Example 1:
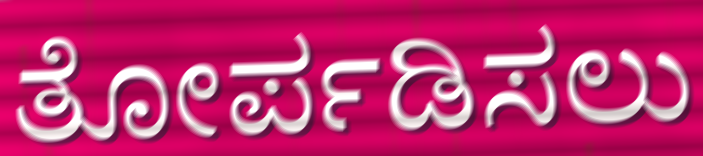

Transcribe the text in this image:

ತೋರ್ಪಡಿಸಲು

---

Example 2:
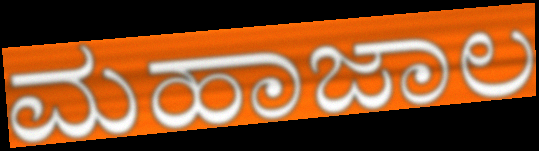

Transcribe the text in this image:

ಮಹಾಜಾಲ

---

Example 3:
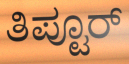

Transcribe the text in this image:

ತಿಪ್ಟೂರ್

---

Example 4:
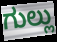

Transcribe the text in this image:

ಗುಲ್ಲು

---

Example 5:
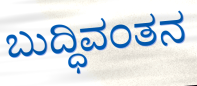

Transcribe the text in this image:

ಬುದ್ಧಿವಂತನ